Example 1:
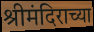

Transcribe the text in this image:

श्रीमंदिराच्या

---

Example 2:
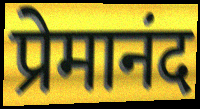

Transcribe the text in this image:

प्रेमानंद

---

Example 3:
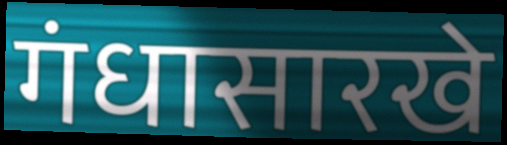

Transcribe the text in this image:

गंधासारखे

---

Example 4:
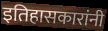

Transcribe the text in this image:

इतिहासकारांनी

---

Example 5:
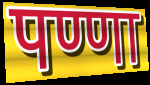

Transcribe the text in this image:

पण्णा